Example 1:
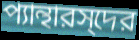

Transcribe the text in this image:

প্যান্থারস্‌দের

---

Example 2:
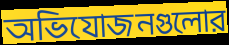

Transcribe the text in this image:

অভিযোজনগুলোর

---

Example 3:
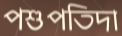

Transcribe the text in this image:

পশুপতিদা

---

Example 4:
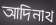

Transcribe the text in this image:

আদিনাথ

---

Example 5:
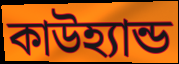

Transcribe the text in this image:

কাউহ্যান্ড